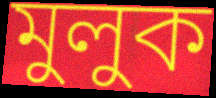
মুলুক